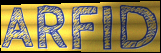
ARFID